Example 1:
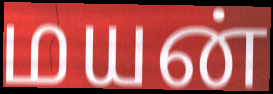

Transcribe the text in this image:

மயன்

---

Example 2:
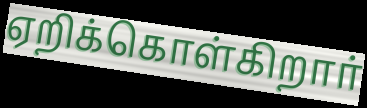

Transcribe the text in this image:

ஏறிக்கொள்கிறார்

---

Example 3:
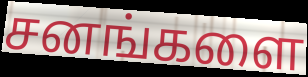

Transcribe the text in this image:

சனங்களை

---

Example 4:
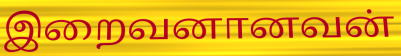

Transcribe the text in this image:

இறைவனானவன்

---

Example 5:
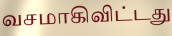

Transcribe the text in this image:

வசமாகிவிட்டது